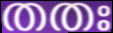
തതഃ